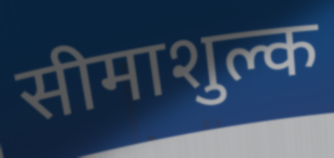
सीमाशुल्क